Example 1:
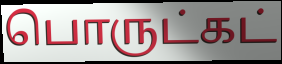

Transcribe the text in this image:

பொருட்கட்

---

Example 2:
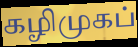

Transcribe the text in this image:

கழிமுகப்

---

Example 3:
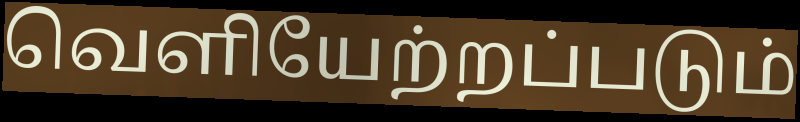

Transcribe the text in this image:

வெளியேற்றப்படும்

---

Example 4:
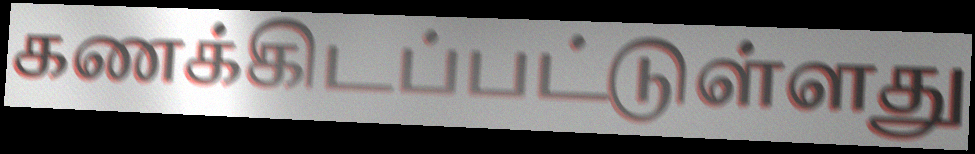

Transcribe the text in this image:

கணக்கிடப்பட்டுள்ளது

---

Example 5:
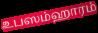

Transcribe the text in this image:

உபஸம்ஹாரம்